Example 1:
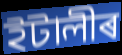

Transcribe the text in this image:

ইটালীৰ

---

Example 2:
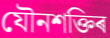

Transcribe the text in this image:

যৌনশক্তিৰ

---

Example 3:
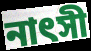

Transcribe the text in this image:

নাৎসী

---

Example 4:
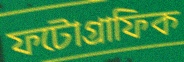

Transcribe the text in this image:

ফটোগ্ৰাফিক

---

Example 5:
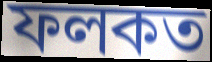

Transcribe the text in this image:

ফলকত